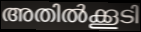
അതിൽക്കൂടി